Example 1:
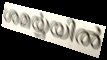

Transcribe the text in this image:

ശമൎയ്യയിൽ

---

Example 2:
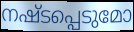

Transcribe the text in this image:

നഷ്ടപ്പെടുമോ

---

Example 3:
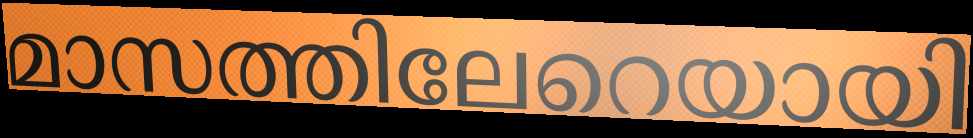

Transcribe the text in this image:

മാസത്തിലേറെയായി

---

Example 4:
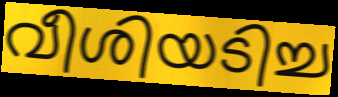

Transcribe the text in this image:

വീശിയടിച്ച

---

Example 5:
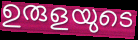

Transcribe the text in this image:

ഉരുളയുടെ